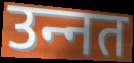
उन्नत